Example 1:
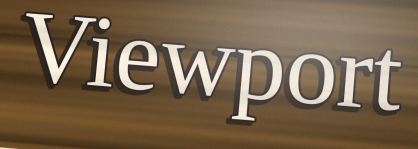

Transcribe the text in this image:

Viewport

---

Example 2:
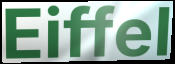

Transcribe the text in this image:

Eiffel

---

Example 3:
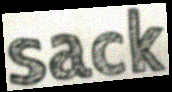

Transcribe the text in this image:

sack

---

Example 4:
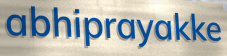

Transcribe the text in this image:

abhiprayakke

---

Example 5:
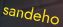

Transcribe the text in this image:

sandeho